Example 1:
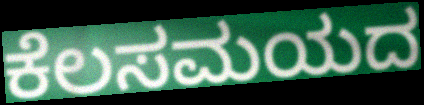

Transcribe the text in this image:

ಕೆಲಸಮಯದ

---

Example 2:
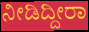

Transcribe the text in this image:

ನೀಡಿದ್ದೀರಾ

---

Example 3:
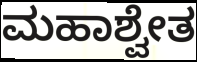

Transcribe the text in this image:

ಮಹಾಶ್ವೇತ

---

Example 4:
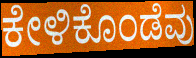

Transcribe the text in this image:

ಕೇಳಿಕೊಂಡೆವು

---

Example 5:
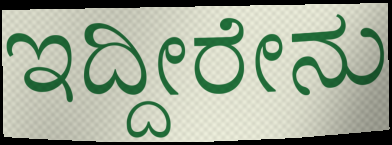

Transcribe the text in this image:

ಇದ್ದೀರೇನು